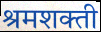
श्रमशक्ती